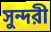
সুন্দরী